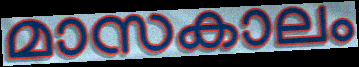
മാസകാലം